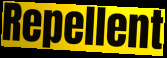
Repellent